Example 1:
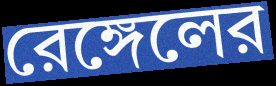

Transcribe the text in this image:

রেঙ্গেলের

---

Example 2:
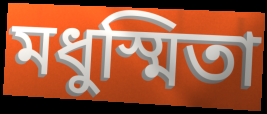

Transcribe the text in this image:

মধুস্মিতা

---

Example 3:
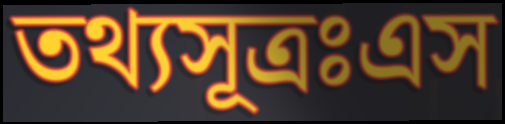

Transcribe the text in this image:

তথ্যসূত্রঃএস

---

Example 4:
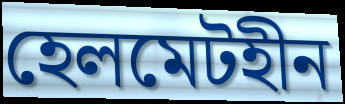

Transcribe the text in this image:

হেলমেটহীন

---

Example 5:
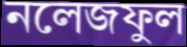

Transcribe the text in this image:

নলেজফুল